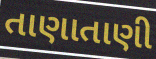
તાણાતાણી